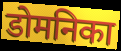
डोमनिका